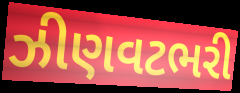
ઝીણવટભરી